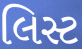
લિસ્ટ